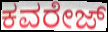
ಕವರೇಜ್